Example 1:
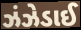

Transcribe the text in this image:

ઝંઝેડાઈ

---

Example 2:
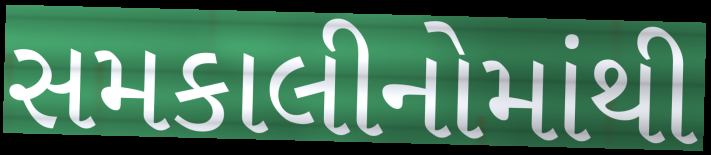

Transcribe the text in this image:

સમકાલીનોમાંથી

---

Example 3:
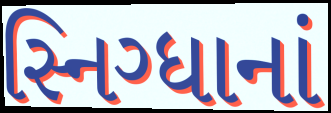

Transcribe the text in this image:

સ્નિગ્ધાનાં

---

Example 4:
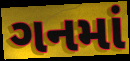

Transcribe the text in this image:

ગનમાં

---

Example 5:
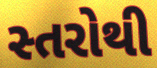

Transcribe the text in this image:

સ્તરોથી